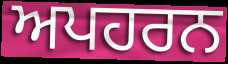
ਅਪਹਰਨ